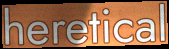
heretical